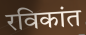
रविकांत